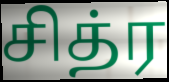
சித்ர